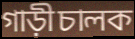
গাড়ীচালক